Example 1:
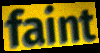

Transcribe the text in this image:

faint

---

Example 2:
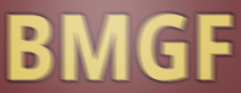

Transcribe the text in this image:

BMGF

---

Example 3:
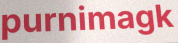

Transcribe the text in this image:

purnimagk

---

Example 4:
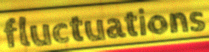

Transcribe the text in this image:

fluctuations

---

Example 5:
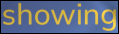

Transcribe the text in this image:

showing